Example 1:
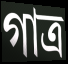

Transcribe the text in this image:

গাত্র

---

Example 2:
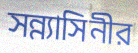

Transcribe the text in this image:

সন্ন্যাসিনীর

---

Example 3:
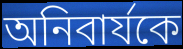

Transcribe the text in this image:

অনিবার্যকে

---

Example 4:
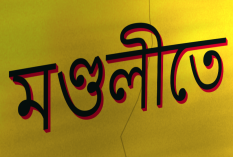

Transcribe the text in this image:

মণ্ডলীতে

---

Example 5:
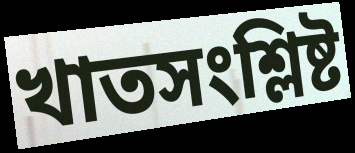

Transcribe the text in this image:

খাতসংশ্লিষ্ট